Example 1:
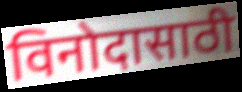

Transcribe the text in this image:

विनोदासाठी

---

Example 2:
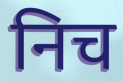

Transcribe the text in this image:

निच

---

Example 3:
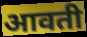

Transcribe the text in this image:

आवती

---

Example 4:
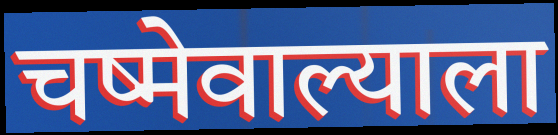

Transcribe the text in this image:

चष्मेवाल्याला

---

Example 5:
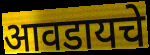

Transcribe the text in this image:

आवडायचे